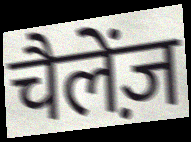
चैलेंज़